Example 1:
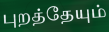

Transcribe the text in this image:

புறத்தேயும்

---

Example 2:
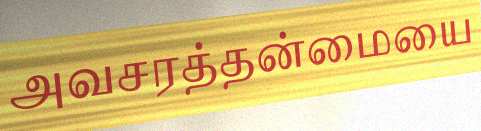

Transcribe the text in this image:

அவசரத்தன்மையை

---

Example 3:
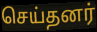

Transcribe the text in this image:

செய்தனர்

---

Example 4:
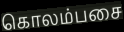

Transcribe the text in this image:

கொலம்பசை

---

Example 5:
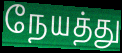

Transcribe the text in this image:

நேயத்து